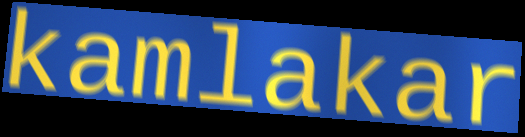
kamlakar